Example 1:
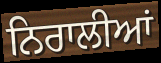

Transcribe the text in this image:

ਨਿਰਾਲੀਆਂ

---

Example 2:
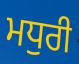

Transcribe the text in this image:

ਮਧੁਰੀ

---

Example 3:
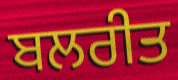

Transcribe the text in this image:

ਬਲਰੀਤ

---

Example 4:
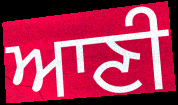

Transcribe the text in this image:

ਆਣੀ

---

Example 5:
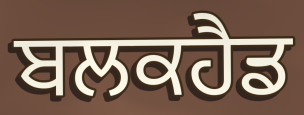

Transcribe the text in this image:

ਬਲਕਹੈਡ